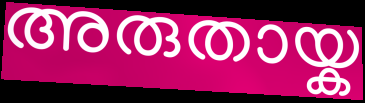
അരുതായ്ക